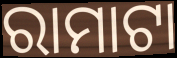
ରାମାଟା